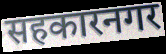
सहकारनगर